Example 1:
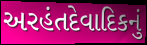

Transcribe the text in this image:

અરહંતદેવાદિકનું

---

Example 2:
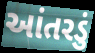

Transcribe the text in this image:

આંતરડું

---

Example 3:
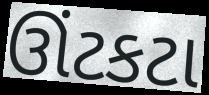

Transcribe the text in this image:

ઊંટકટા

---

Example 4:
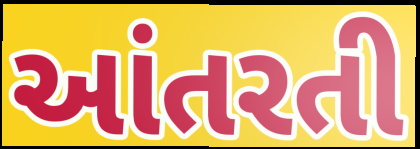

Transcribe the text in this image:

આંતરતી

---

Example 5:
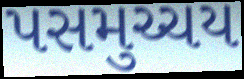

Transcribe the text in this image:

પસમુચ્ચય